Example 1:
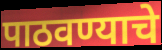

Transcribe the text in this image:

पाठवण्याचे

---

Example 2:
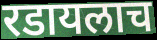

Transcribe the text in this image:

रडायलाच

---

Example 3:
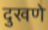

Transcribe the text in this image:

दुखणे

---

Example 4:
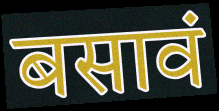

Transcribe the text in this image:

बसावं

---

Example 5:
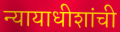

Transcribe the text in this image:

न्यायाधीशांची